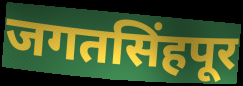
जगतसिंहपूर